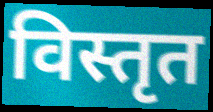
विस्तृत